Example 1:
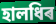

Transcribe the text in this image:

হালধিৰ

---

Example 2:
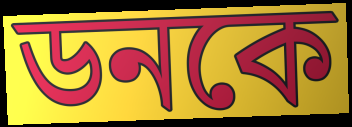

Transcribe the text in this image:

ডনকে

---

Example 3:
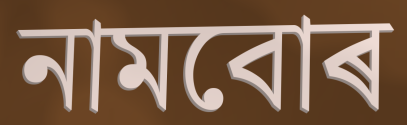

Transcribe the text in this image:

নামবোৰ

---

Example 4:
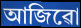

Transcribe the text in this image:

আজিৱো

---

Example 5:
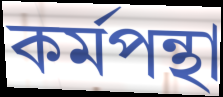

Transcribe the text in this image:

কৰ্মপন্থা